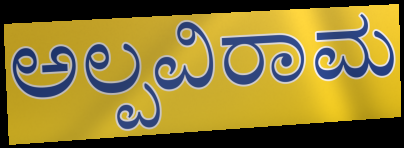
ಅಲ್ಪವಿರಾಮ